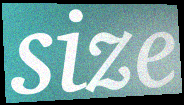
size